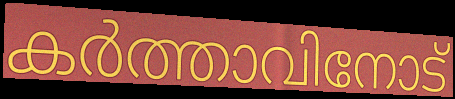
കർത്താവിനോട്